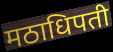
मठाधिपती